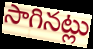
సాగినట్లు